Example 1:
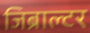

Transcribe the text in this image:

जिब्राल्टर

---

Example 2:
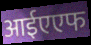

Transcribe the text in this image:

आईएएफ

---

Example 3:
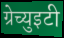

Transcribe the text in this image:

ग्रेच्युइटी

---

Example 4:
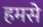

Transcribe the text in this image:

हमसे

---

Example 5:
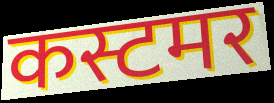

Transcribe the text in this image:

कस्टमर